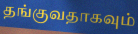
தங்குவதாகவும்